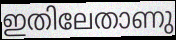
ഇതിലേതാണു